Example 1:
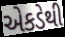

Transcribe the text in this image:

એકડેથી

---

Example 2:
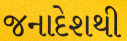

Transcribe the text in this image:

જનાદેશથી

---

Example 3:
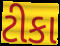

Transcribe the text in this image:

ટીકા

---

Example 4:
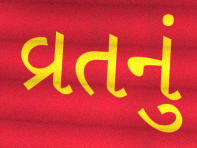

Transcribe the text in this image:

વ્રતનું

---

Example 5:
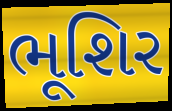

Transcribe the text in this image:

ભૂશિર